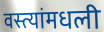
वस्त्यांमधली